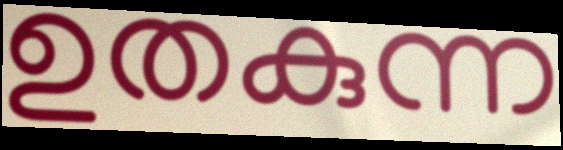
ഉതകുന്ന